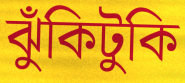
ঝুঁকিটুকি